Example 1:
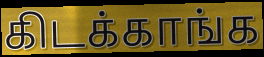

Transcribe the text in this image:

கிடக்காங்க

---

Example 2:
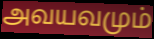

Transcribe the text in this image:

அவயவமும்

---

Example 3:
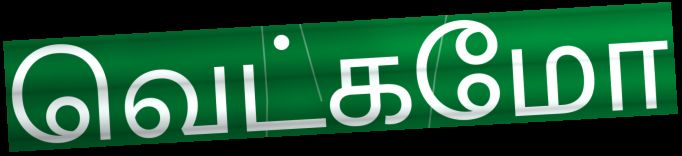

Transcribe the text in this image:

வெட்கமோ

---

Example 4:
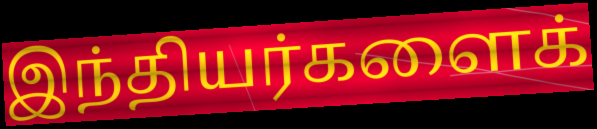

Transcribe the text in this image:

இந்தியர்களைக்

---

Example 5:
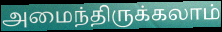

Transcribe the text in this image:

அமைந்திருக்கலாம்